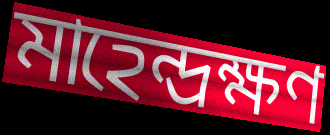
মাহেন্দ্রক্ষণ